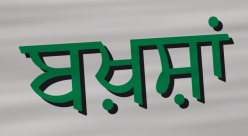
ਬਖ਼ਸ਼ਾਂ